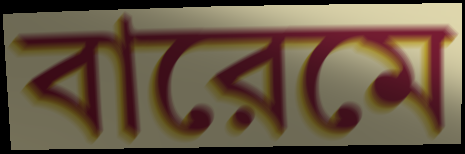
বারেমে